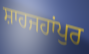
ਸ਼ਾਹਜਹਾਂਪੁਰ